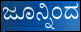
ಜೂನ್ನಿಂದ